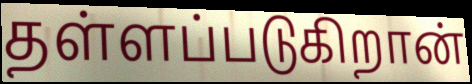
தள்ளப்படுகிறான்